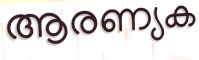
ആരണ്യക